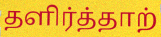
தளிர்த்தாற்